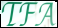
TFA